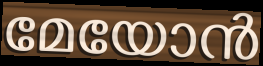
മേയോൻ